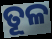
ତୂଳ